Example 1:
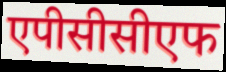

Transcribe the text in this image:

एपीसीसीएफ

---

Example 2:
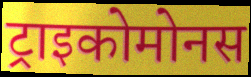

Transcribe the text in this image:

ट्राइकोमोनस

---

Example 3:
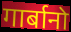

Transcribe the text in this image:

गार्बानो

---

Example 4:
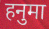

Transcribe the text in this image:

हनुमा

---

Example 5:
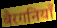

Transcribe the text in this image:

बैरगनियाँ